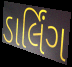
ડાર્લિંગ